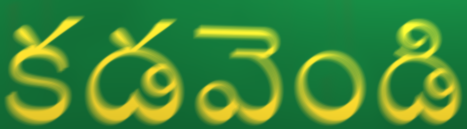
కడవెండి